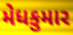
મેધકુમાર